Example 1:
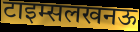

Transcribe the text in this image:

टाइम्सलखनऊ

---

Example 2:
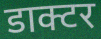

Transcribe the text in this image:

डाक्टर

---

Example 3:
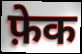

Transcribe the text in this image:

फ़ेक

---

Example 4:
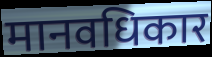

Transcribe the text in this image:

मानवधिकार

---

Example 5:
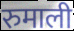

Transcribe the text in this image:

रुमाली